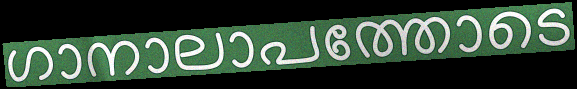
ഗാനാലാപത്തോടെ